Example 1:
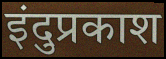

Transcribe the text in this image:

इंदुप्रकाश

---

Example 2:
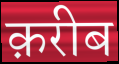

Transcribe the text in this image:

क़रीब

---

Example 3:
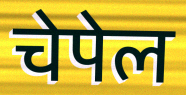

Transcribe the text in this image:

चेपेल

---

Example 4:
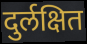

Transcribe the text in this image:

दुर्लक्षित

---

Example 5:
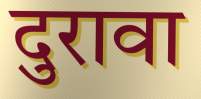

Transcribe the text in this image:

दुरावा